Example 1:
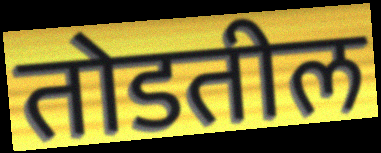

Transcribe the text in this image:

तोडतील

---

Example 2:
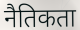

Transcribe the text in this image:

नैतिकता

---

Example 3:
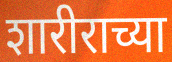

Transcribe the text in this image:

शारीराच्या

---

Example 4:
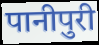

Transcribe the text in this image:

पानीपुरी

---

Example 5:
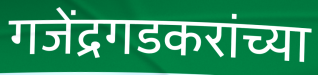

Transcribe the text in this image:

गजेंद्रगडकरांच्या